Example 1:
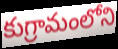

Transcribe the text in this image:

కుగ్రామంలోని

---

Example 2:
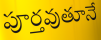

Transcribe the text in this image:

పూర్తవుతూనే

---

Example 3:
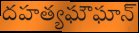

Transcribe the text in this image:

దహత్యఘౌఘాన్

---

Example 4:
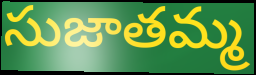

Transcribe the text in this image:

సుజాతమ్మ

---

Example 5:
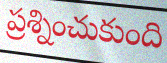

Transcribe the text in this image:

ప్రశ్నించుకుంది